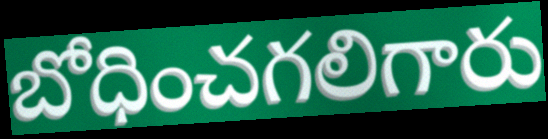
బోధించగలిగారు